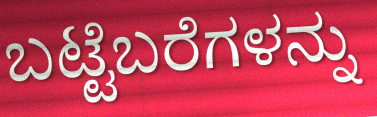
ಬಟ್ಟೆಬರೆಗಳನ್ನು